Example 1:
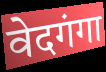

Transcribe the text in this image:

वेदगंगा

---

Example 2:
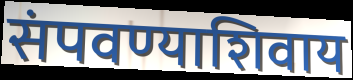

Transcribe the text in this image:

संपवण्याशिवाय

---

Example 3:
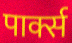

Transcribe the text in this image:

पार्क्स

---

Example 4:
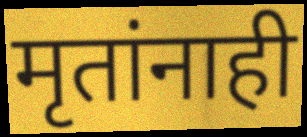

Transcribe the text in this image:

मृतांनाही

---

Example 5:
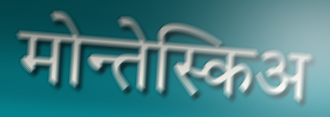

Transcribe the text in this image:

मोन्तेस्किअ